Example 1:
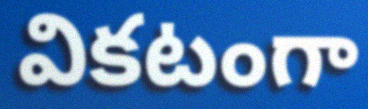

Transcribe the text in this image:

వికటంగా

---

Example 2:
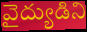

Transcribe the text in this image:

వైద్యుడిని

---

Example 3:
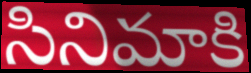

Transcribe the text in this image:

సినిమాకి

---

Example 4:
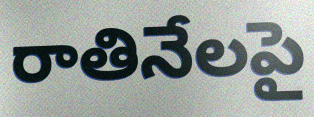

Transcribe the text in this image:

రాతినేలపై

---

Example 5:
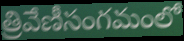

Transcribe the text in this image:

త్రివేణీసంగమంలో